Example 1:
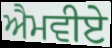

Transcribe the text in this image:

ਐਮਵੀਏ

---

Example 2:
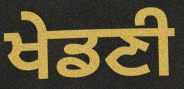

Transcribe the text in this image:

ਖੇਡਣੀ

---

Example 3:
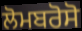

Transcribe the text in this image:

ਲੋਮਬਰੋਸੋ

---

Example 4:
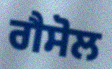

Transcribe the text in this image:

ਗੈਸੋਲ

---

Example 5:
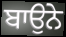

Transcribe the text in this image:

ਬਾਉਨੇ